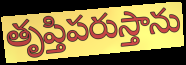
తృప్తిపరుస్తాను